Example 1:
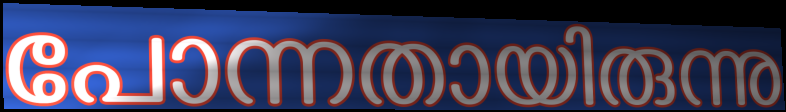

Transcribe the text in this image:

പോന്നതായിരുന്നു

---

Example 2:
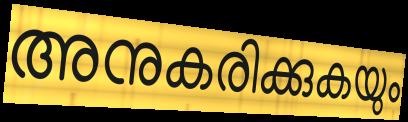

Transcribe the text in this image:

അനുകരിക്കുകയും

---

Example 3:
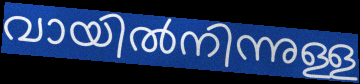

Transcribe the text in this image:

വായിൽനിന്നുള്ള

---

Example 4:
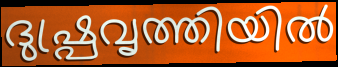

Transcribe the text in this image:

ദുഷ്പ്രവൃത്തിയിൽ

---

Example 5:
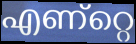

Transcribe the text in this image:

എണ്റ്റെ